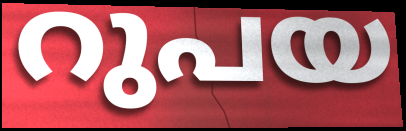
റുപയ